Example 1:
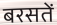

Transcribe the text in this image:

बरसतें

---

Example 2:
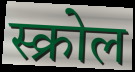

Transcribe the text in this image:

स्क्रोल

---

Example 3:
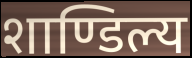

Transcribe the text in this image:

शाण्डिल्य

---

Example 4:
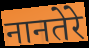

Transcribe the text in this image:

नानतेरे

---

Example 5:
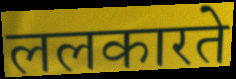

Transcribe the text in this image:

ललकारते